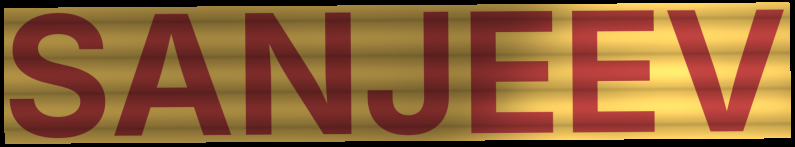
SANJEEV